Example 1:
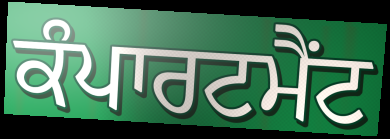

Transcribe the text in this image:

ਕੰਪਾਰਟਮੈਂਟ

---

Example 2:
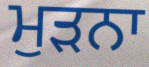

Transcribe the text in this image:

ਮੁਡ਼ਨਾ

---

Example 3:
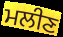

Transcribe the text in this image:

ਮਲੀਣ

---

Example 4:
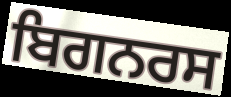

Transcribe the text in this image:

ਬਿਗਨਰਸ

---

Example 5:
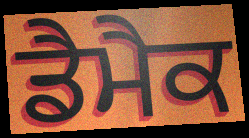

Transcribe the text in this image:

ਡੈਮੈਕ